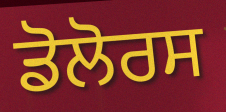
ਡੋਲੋਰਸ